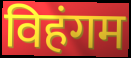
विहंगम